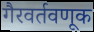
गैरवर्तवणूक